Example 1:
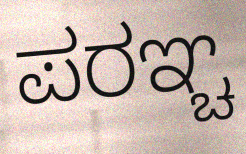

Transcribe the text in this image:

ಪರಞ್ಚ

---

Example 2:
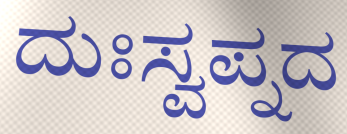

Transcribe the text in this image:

ದುಃಸ್ವಪ್ನದ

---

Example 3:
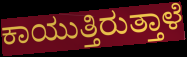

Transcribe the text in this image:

ಕಾಯುತ್ತಿರುತ್ತಾಳೆ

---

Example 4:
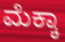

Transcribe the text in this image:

ಮೆಕ್ಕಾ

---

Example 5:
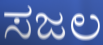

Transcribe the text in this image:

ಸಜಲ